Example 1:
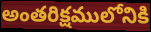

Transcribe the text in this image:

అంతరిక్షములోనికి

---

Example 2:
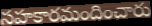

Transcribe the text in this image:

సహకారమందించారు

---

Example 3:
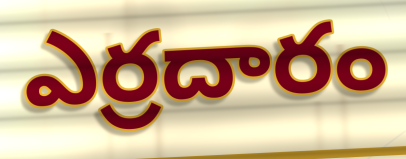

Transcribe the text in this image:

ఎర్రదారం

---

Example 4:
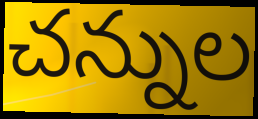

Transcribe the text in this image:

చన్నుల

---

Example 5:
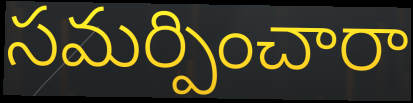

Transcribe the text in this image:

సమర్పించారా